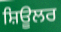
ਸ਼ਿਊਲਰ